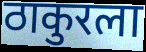
ठाकुरला